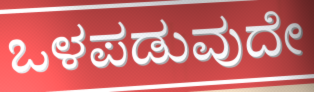
ಒಳಪಡುವುದೇ